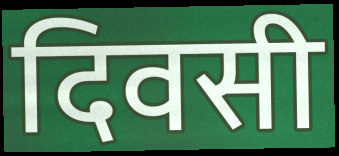
दिवसी